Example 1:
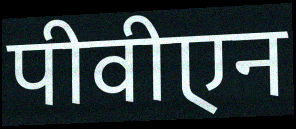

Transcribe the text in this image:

पीवीएन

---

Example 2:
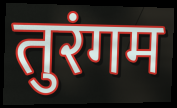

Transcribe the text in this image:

तुरंगम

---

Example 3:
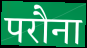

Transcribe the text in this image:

परौना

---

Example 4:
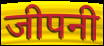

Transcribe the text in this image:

जीपनी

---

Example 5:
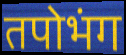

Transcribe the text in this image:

तपोभंग